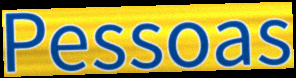
Pessoas